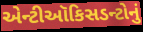
એન્ટીઑકિસડન્ટોનું